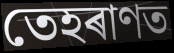
তেহৰাণত